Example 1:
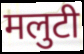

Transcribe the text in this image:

मलुटी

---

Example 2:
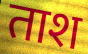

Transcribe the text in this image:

ताश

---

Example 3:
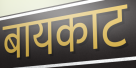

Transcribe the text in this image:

बायकाट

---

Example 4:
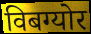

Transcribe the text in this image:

विबग्योर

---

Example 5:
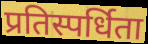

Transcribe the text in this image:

प्रतिस्पर्धिता